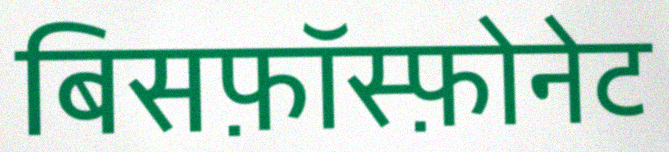
बिसफ़ॉस्फ़ोनेट